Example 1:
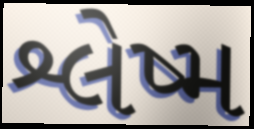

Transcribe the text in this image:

શ્લેષ્મ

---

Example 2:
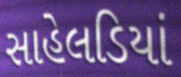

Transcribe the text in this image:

સાહેલડિયાં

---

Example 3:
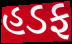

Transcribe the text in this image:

હડફ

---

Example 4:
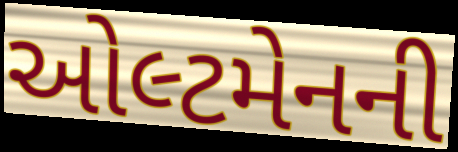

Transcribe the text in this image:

ઓલ્ટમેનની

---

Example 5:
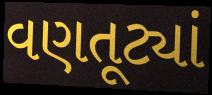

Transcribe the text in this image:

વણતૂટ્યાં